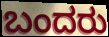
ಬಂದರು